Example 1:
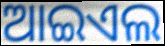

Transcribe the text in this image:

ଆଇଏଲ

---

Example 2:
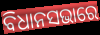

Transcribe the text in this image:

ବିଧାନସଭାରେ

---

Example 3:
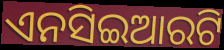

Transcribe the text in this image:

ଏନସିଇଆରଟି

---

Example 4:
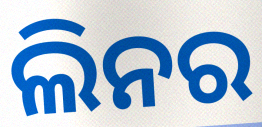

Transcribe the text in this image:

ଲିନର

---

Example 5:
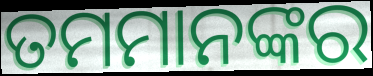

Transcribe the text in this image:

ତମମାନଙ୍କର